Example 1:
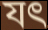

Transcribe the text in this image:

যৎ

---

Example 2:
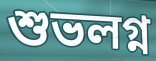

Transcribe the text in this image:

শুভলগ্ন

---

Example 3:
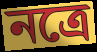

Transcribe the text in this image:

নত্রে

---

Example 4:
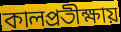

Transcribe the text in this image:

কালপ্রতীক্ষায়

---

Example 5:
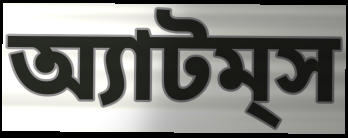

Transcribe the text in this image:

অ্যাটম্‌স